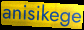
anisikege